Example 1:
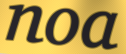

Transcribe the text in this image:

noa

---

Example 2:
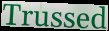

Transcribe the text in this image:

Trussed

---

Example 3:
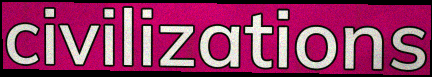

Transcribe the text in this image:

civilizations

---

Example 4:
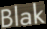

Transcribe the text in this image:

Blak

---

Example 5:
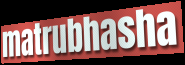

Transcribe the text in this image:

matrubhasha